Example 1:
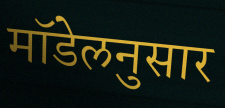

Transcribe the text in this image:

मॉडेलनुसार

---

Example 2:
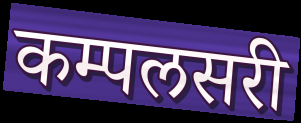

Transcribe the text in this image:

कम्पलसरी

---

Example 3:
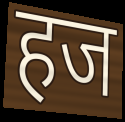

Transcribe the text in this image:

हज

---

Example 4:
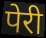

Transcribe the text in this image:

पेरी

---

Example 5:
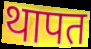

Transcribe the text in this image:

थापत